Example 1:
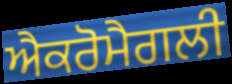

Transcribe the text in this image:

ਐਕਰੋਮੈਗਲੀ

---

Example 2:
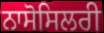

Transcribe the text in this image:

ਨਾਸੋਸਿਲਰੀ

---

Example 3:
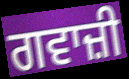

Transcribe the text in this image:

ਗਵਾਜ਼ੀ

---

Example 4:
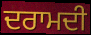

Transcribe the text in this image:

ਦਰਾਮਦੀ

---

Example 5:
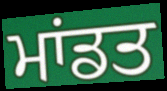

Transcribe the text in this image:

ਮਾਂਡਤ